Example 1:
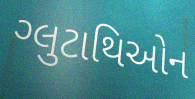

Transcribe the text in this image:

ગ્લુટાથિઓન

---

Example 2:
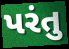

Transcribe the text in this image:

પરંતુ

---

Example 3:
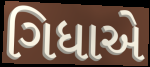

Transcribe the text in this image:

ગિધાએ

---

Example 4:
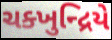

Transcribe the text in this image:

ચક્ખુન્દ્રિયે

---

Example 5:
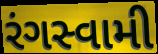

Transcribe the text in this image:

રંગસ્વામી